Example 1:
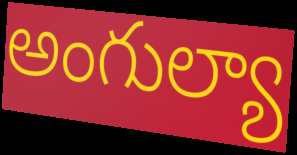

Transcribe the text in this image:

అంగుల్యా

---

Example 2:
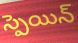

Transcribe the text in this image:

స్పెయిన్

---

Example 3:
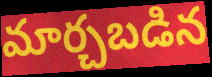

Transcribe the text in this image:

మార్చబడిన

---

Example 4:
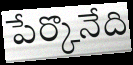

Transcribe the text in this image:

పేర్కొనేది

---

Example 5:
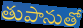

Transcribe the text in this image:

తుపానుతో